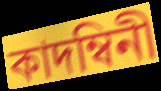
কাদম্বিনী